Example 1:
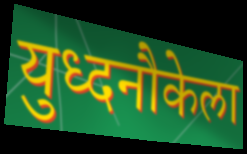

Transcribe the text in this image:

युध्दनौकेला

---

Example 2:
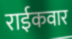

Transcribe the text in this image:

राईकवार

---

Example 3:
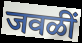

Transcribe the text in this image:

जवळीं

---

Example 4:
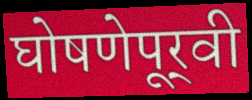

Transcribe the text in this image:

घोषणेपूर्वी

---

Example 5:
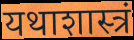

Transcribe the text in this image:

यथाशास्त्रं